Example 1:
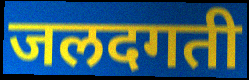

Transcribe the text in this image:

जलदगती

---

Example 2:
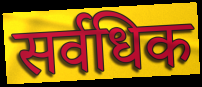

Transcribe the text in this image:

सर्वधिक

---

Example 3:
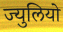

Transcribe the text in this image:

ज्युलियो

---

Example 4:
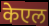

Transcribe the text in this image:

केएल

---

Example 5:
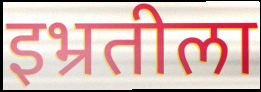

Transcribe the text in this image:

इभ्रतीला